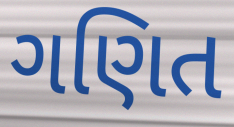
ગણિત